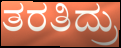
ತರತಿದ್ರು